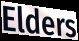
Elders